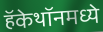
हॅकेथॉनमध्ये